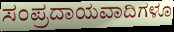
ಸಂಪ್ರದಾಯವಾದಿಗಳೂ